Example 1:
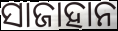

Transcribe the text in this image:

ସାଜାହାନ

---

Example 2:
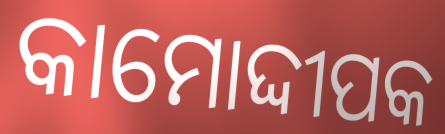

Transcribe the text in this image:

କାମୋଦ୍ଦୀପକ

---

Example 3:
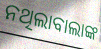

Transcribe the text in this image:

ନଥିଲାବାଲାଙ୍କ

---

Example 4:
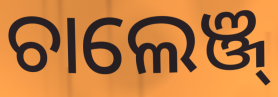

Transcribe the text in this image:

ଚାଲେଞ୍ଜ୍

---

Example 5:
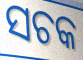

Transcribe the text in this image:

ସଚକ